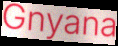
Gnyana